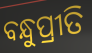
ବନ୍ଧୁପ୍ରୀତି